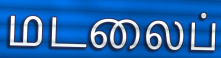
மடலைப்